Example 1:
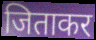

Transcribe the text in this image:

जिताकर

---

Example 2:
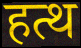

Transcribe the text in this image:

हत्थ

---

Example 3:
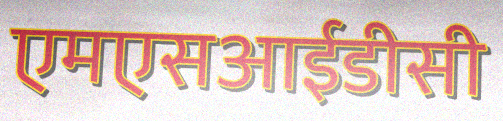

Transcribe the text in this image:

एमएसआईडीसी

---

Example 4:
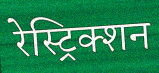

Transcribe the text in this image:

रेस्ट्रिक्शन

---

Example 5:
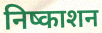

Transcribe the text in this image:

निष्काशन